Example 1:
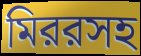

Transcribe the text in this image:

মিররসহ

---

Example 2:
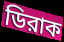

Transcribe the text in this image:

ডিরাক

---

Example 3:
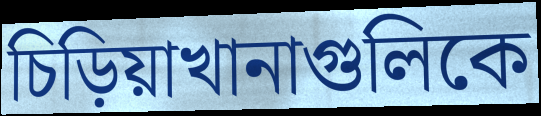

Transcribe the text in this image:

চিড়িয়াখানাগুলিকে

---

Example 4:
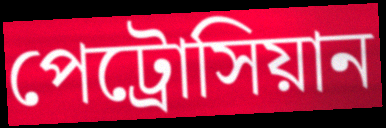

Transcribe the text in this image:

পেট্রোসিয়ান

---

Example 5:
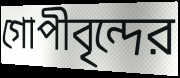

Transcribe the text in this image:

গোপীবৃন্দের